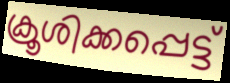
ക്രൂശിക്കപ്പെട്ട്